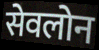
सेवलोन